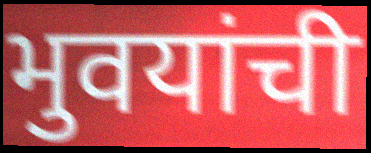
भुवयांची